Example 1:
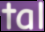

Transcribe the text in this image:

tal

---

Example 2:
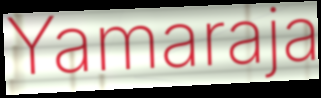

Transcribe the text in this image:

Yamaraja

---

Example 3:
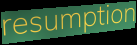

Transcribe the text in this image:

resumption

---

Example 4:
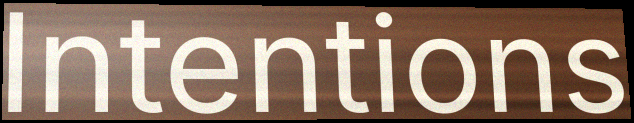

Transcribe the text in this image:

Intentions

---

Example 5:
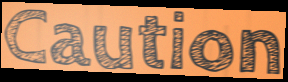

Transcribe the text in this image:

Caution